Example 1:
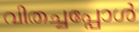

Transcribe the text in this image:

വിതച്ചപ്പോൾ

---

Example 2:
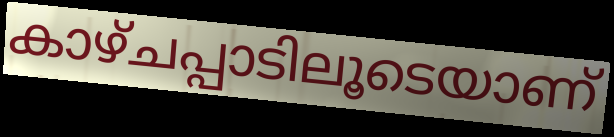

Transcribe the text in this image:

കാഴ്ചപ്പാടിലൂടെയാണ്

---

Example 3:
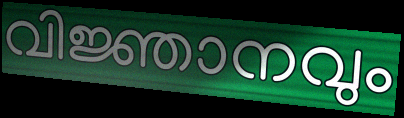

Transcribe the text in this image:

വിജ്ഞാനവും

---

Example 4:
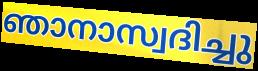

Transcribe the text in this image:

ഞാനാസ്വദിച്ചു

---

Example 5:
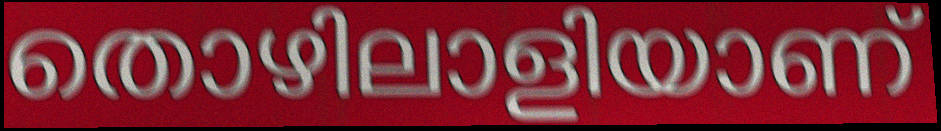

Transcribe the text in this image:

തൊഴിലാളിയാണ്